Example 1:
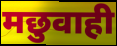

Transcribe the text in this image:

मछुवाही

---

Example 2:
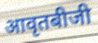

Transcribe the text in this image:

आवृतबीजी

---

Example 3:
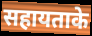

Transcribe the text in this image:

सहायताके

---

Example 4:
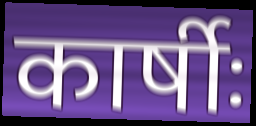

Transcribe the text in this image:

कार्षीः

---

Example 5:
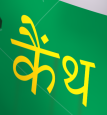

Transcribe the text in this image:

कैंथ